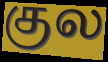
குல